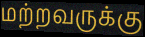
மற்றவருக்கு